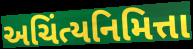
અચિંત્યનિમિત્તા